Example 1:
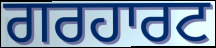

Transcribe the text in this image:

ਗਰਹਾਰਟ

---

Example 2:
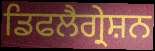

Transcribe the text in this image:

ਡਿਫਲੈਗ੍ਰੇਸ਼ਨ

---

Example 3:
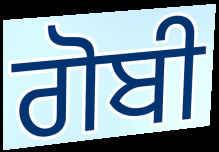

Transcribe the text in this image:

ਗੋਬੀ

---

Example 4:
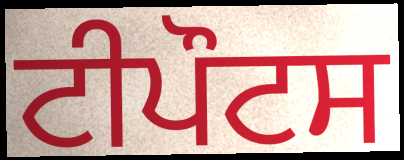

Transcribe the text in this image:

ਟੀਪੌਟਸ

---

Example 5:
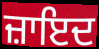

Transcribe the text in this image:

ਜ਼ਾਇਦ